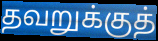
தவறுக்குத்